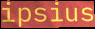
ipsius